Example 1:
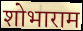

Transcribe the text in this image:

शोभाराम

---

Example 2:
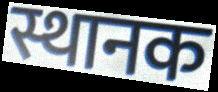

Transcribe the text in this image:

स्थानक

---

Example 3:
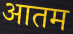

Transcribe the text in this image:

आतम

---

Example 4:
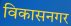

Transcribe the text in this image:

विकासनगर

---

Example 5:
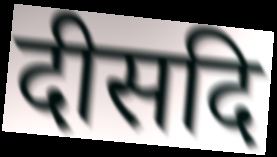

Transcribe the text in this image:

दीसदि